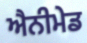
ਐਨੀਮੇਡ